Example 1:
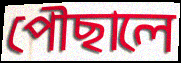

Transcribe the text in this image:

পৌছালে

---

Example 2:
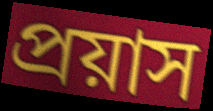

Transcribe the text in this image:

প্রয়াস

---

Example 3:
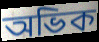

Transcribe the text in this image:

অভিক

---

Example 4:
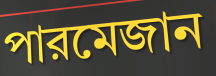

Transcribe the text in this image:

পারমেজান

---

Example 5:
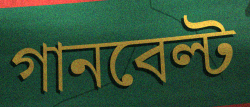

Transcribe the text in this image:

গানবেল্ট